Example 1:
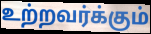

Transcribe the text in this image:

உற்றவர்க்கும்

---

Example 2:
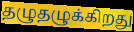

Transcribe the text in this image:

தழுதழுக்கிறது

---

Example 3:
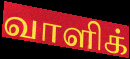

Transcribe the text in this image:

வாளிக்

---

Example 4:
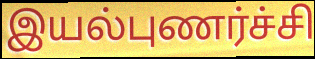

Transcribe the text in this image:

இயல்புணர்ச்சி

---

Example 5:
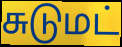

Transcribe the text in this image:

சுடுமட்